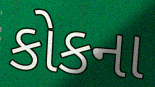
કોકના